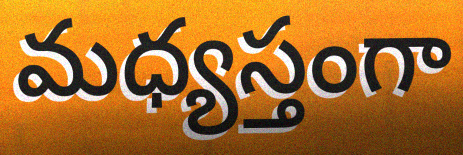
మధ్యస్తంగా